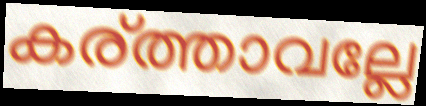
കര്ത്താവല്ലേ